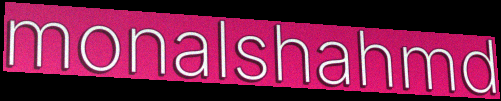
monalshahmd